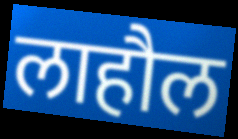
लाहौल